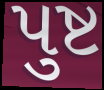
પુષ્ટ